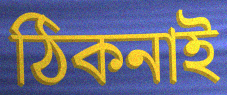
ঠিকনাই